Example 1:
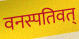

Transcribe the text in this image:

वनस्पतिवत्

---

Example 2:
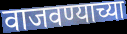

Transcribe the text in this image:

वाजवण्याच्या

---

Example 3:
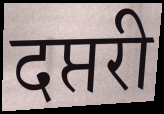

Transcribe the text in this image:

दप्तरी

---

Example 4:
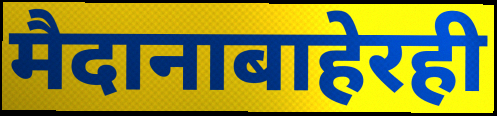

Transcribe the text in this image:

मैदानाबाहेरही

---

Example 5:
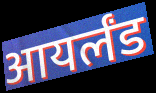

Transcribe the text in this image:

आयर्लंड